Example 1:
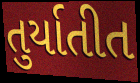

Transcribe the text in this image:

તુર્યાતીત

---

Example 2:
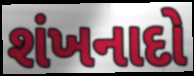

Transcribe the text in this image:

શંખનાદો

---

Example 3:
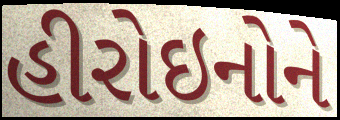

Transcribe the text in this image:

હીરોઇનોને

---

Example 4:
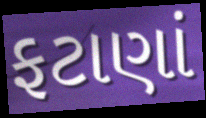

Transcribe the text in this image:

ફટાણાં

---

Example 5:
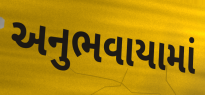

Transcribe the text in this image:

અનુભવાયામાં